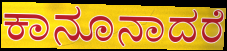
ಕಾನೂನಾದರೆ